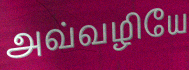
அவ்வழியே